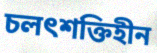
চলৎশক্তিহীন